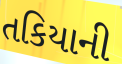
તકિયાની